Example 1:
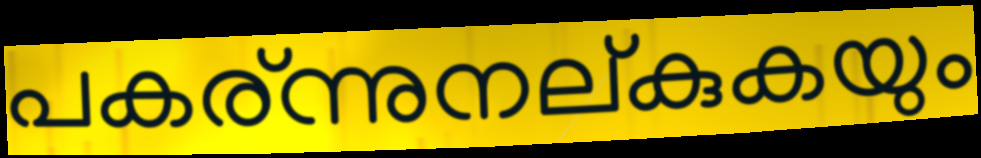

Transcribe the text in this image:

പകര്ന്നുനല്കുകയും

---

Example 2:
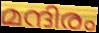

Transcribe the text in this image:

മന്ദിരം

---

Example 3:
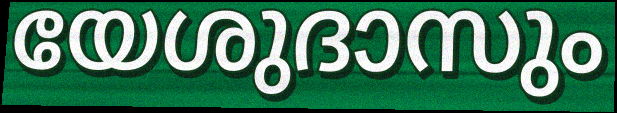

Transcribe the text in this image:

യേശുദാസും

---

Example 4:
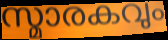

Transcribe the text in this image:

സ്മാരകവും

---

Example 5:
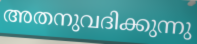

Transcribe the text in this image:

അതനുവദിക്കുന്നു